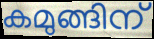
കമുങ്ങിന്